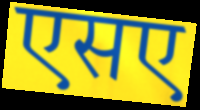
एसए